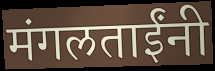
मंगलताईंनी